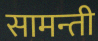
सामन्ती